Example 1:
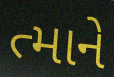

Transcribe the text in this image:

ત્માને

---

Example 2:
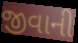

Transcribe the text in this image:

જીવાની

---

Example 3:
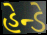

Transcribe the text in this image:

હેન્ડે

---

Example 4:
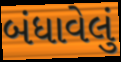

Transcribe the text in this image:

બંધાવેલું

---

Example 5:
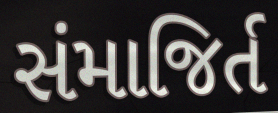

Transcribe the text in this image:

સંમાજિર્ત